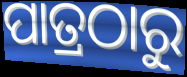
ପାତ୍ରଠାରୁ